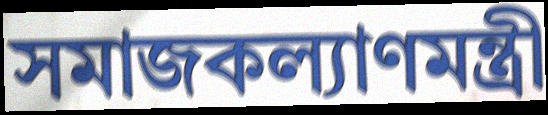
সমাজকল্যাণমন্ত্রী